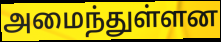
அமைந்துள்ளன